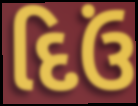
દિઉં